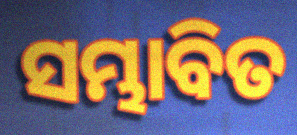
ସମ୍ଭାବିତ